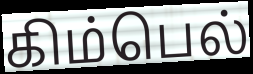
கிம்பெல்